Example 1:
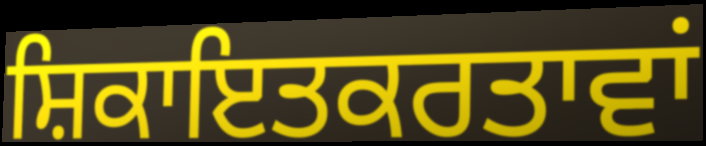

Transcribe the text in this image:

ਸ਼ਿਕਾਇਤਕਰਤਾਵਾਂ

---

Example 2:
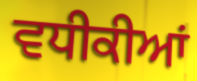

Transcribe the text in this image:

ਵਧੀਕੀਆਂ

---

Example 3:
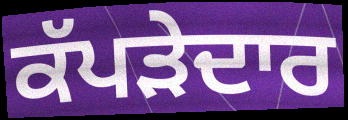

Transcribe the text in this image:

ਕੱਪੜੇਦਾਰ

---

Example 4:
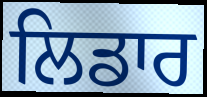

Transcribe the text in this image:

ਲਿਡਾਰ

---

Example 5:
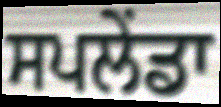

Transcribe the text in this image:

ਸਪਲੇਂਡਾ